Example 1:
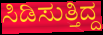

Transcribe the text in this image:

ಸಿಡಿಸುತ್ತಿದ್ದ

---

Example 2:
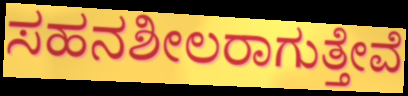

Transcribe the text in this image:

ಸಹನಶೀಲರಾಗುತ್ತೇವೆ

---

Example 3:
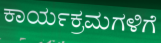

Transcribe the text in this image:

ಕಾರ್ಯಕ್ರಮಗಳಿಗೆ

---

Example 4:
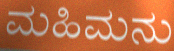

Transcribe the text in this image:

ಮಹಿಮನು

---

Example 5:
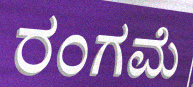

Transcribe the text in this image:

ರಂಗಮೆ